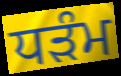
ਧੜੰਮ